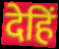
देहिं